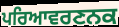
ਪਰਿਆਵਰਣਨਕ